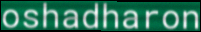
oshadharon